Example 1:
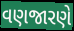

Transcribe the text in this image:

વણજારણે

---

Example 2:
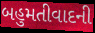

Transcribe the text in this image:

બહુમતીવાદની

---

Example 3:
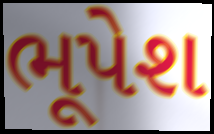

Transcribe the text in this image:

ભૂપેશ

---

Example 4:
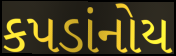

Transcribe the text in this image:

કપડાંનોય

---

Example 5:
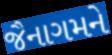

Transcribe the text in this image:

જૈનાગમને